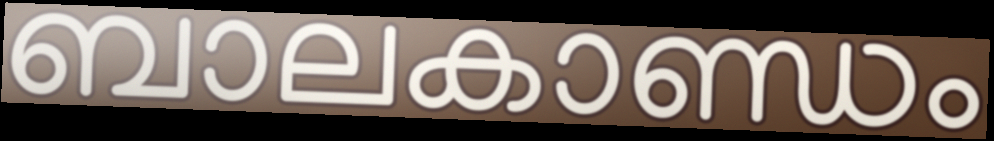
ബാലകാണ്ഡം